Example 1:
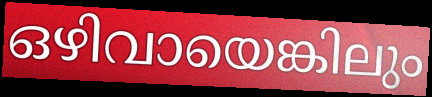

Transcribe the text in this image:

ഒഴിവായെങ്കിലും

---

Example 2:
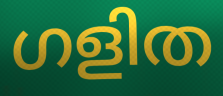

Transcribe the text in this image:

ഗളിത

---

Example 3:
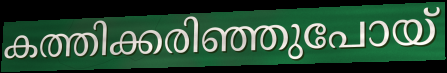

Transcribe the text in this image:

കത്തിക്കരിഞ്ഞുപോയ്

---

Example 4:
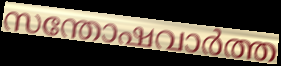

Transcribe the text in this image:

സന്തോഷവാർത്ത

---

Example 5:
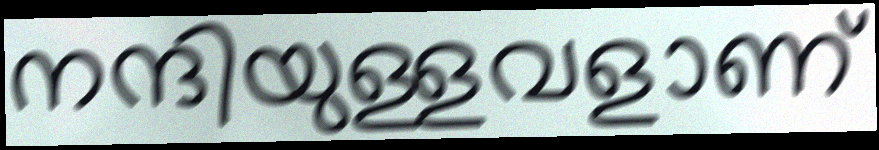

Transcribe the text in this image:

നന്ദിയുള്ളവളാണ്